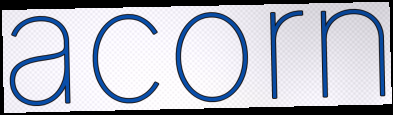
acorn